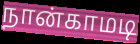
நான்காமடி